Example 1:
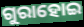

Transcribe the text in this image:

ଗୁରାହୋଇ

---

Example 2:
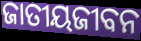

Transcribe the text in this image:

ଜାତୀୟଜୀବନ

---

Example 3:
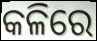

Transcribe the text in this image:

କଳିରେ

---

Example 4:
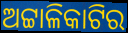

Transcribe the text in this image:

ଅଟ୍ଟାଳିକାଟିର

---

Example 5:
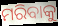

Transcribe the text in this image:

ମରିବାକୁ